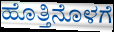
ಹೊತ್ತಿನೊಳಗೆ